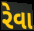
રેવા